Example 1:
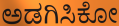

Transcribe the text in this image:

ಅಡಗಿಸಿಕೋ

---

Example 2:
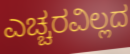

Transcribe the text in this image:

ಎಚ್ಚರವಿಲ್ಲದ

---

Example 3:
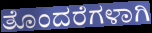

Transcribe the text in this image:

ತೊಂದರೆಗಳಾಗಿ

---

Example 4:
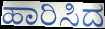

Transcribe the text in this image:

ಹಾರಿಸಿದ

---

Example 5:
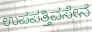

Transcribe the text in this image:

ಉಪಪತ್ತಿವಸೇನ